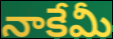
నాకేమీ